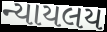
ન્યાયલય